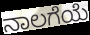
ನಾಲಗೆಯೆ